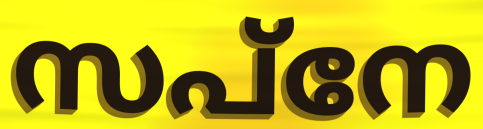
സപ്നേ